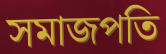
সমাজপতি